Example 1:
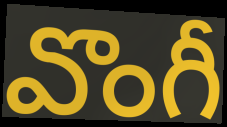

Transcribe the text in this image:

వొంగీ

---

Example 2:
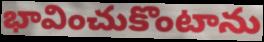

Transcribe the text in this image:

భావించుకొంటాను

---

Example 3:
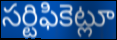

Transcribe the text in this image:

సర్టిఫికెట్లూ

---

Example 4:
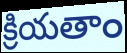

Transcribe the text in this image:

క్రియతాం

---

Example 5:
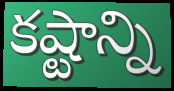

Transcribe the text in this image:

కష్టాన్ని